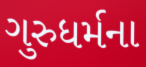
ગુરુધર્મના